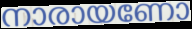
നാരായണോ